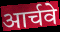
आर्चवे